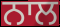
ਨਾਲ